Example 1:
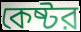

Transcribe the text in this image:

কেষ্টর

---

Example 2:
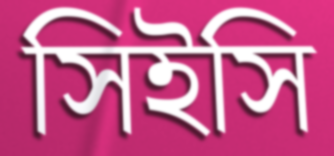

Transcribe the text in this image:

সিইসি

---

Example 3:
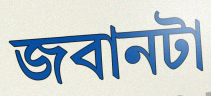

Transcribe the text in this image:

জবানটা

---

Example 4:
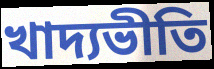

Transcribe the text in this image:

খাদ্যভীতি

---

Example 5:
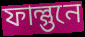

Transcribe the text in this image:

ফাল্গুনে